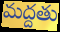
మద్దతు